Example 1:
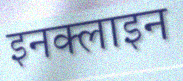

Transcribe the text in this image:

इनक्लाइन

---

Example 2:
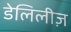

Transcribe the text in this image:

डेलिलीज़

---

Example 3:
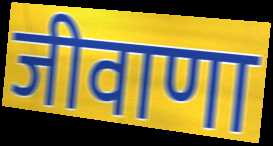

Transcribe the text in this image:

जीवाणा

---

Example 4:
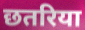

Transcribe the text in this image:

छतरिया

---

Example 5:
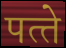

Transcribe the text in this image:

पत्‍ते